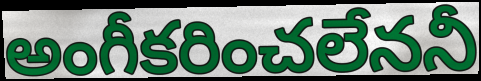
అంగీకరించలేననీ